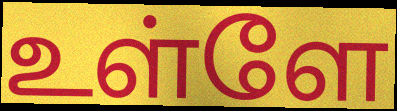
உள்ளே